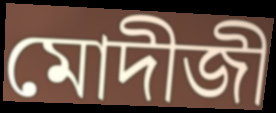
মোদীজী